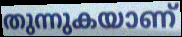
തുന്നുകയാണ്